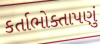
કર્તાભોક્તાપણું